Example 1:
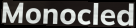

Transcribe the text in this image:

Monocled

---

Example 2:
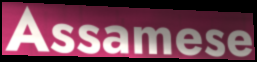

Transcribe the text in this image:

Assamese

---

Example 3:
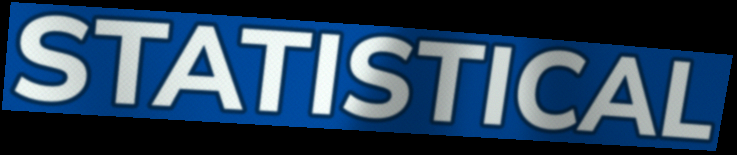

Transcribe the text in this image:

STATISTICAL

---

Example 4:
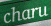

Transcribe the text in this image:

charu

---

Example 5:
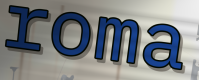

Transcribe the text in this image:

roma